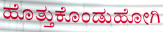
ಹೊತ್ತುಕೊಂಡುಹೋಗಿ